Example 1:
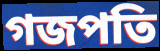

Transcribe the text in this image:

গজপতি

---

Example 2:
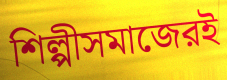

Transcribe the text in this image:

শিল্পীসমাজেরই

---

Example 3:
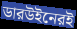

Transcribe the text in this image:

ডারউইনেরই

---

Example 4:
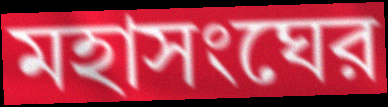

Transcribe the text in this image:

মহাসংঘের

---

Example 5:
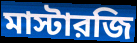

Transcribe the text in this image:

মাস্টারজি